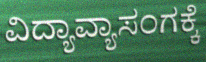
ವಿದ್ಯಾವ್ಯಾಸಂಗಕ್ಕೆ